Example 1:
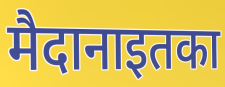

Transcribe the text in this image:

मैदानाइतका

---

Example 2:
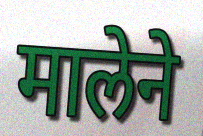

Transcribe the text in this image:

मालेने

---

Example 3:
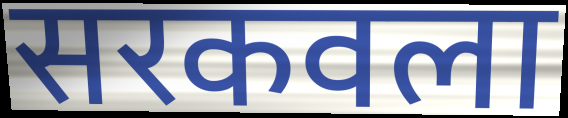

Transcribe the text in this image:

सरकवला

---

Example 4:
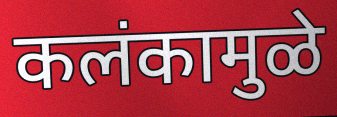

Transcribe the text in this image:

कलंकामुळे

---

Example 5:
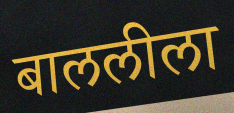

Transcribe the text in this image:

बाललीला